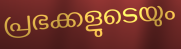
പ്രഭക്കളുടെയും